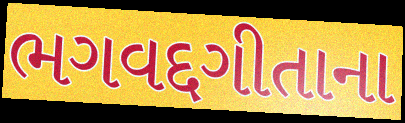
ભગવદ્દગીતાના